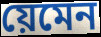
য়েমেন